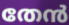
തേൻ